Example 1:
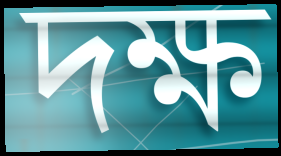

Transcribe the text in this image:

দক্ষ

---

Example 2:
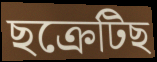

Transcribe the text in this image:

ছক্ৰেটিছ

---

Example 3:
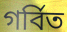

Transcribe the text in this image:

গৰ্বিত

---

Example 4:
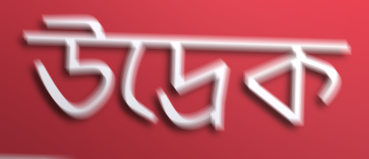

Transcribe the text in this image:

উদ্ৰেক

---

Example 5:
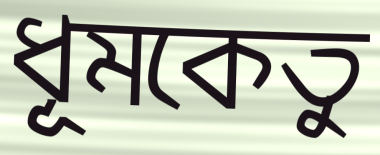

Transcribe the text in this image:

ধূমকেতু